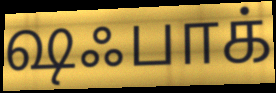
ஷஃபாக்